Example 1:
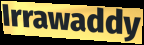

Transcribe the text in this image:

Irrawaddy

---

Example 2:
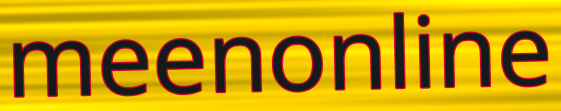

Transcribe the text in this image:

meenonline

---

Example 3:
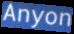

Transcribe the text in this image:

Anyon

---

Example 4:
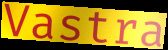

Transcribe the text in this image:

Vastra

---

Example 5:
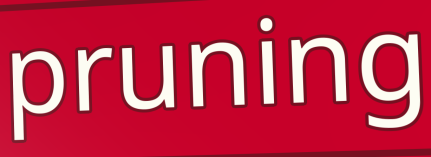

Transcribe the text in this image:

pruning